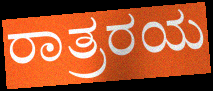
ರಾತ್ರರಯ